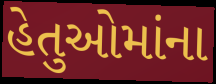
હેતુઓમાંના